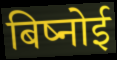
बिष्नोई